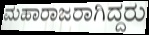
ಮಹಾರಾಜರಾಗಿದ್ದರು